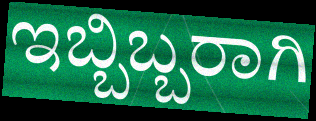
ಇಬ್ಬಿಬ್ಬರಾಗಿ